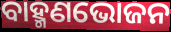
ବାହ୍ମଣଭୋଜନ